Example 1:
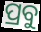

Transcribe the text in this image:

ପ୍ରବୁ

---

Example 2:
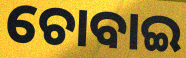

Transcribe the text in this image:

ଚୋବାଇ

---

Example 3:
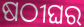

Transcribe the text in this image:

ଷଠୀଘର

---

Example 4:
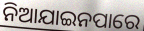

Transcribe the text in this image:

ନିଆଯାଇନପାରେ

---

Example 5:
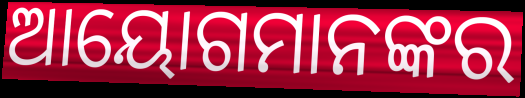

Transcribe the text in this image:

ଆୟୋଗମାନଙ୍କର